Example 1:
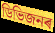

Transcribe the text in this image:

ডিভিজনৰ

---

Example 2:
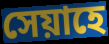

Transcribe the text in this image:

সেয়াহে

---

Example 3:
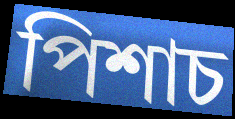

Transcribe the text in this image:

পিশাচ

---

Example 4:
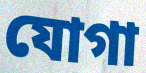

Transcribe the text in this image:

যোগা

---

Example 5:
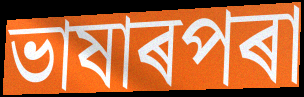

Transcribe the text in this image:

ভাষাৰপৰা